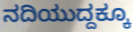
ನದಿಯುದ್ದಕ್ಕೂ